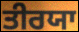
ਤੀਰਯਾ